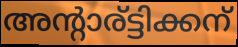
അന്റാര്ട്ടിക്കന്